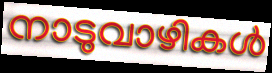
നാടുവാഴികൾ